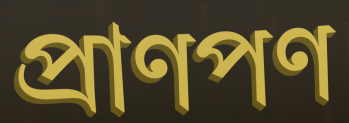
প্রাণপণ